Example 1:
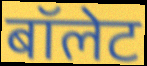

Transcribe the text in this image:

बॉलेट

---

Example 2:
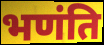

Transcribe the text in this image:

भणंति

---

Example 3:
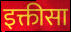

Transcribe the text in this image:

इक्तीसा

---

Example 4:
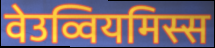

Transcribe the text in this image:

वेउव्वियमिस्स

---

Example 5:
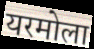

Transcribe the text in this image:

यरमोला